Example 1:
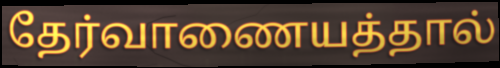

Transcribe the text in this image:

தேர்வாணையத்தால்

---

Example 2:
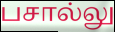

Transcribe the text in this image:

பசால்லு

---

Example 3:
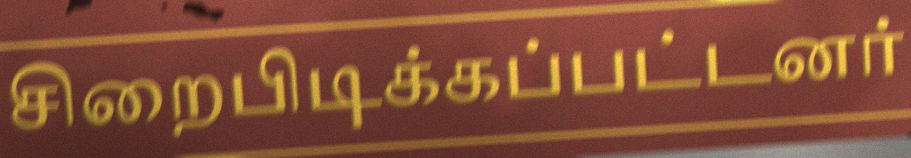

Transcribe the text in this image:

சிறைபிடிக்கப்பட்டனர்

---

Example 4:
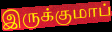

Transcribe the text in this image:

இருக்குமாப்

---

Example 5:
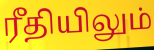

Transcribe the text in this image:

ரீதியிலும்